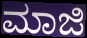
ಮಾಜಿ